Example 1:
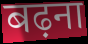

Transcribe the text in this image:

बढ़ना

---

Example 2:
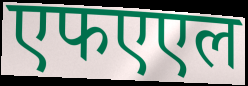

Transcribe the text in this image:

एफएएल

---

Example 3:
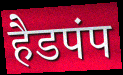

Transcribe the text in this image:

हैडपंप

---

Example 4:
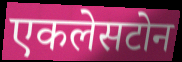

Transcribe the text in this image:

एकलेसटोन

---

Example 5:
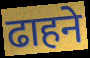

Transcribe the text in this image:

ढाहने